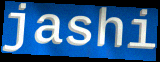
jashi